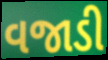
વજાડી